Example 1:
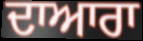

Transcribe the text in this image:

ਦਾਆਰਾ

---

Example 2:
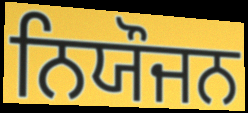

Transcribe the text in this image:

ਨਿਯੌਜਨ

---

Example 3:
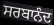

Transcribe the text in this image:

ਸਰਬਾਨੰਦ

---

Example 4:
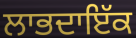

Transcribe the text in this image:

ਲਾਭਦਾਇੱਕ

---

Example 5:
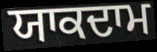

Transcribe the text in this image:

ਯਾਕਦਾਮ